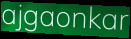
ajgaonkar